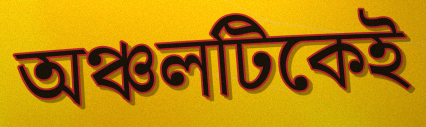
অঞ্চলটিকেই